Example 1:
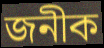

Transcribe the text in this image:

জনীক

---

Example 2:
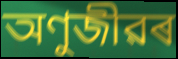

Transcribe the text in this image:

অণুজীৱৰ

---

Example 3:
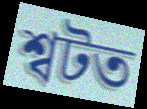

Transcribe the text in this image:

শ্বটত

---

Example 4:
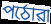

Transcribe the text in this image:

পঠোৱা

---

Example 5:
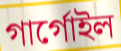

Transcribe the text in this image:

গাৰ্গোইল